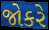
જોકરે